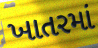
ખાતરમાં